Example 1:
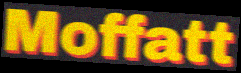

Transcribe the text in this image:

Moffatt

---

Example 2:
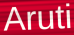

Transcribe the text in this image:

Aruti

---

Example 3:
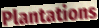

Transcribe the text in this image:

Plantations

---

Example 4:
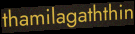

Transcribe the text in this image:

thamilagaththin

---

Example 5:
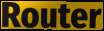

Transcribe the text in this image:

Router